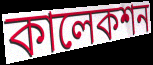
কালেকশন